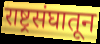
राष्ट्रसंघातून